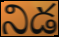
నిడ